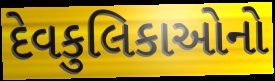
દેવકુલિકાઓનો